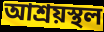
আশ্রয়স্থল